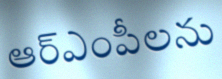
ఆర్ఎంపీలను